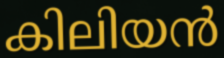
കിലിയൻ